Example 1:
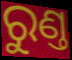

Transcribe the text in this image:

ରୁଣ୍ତ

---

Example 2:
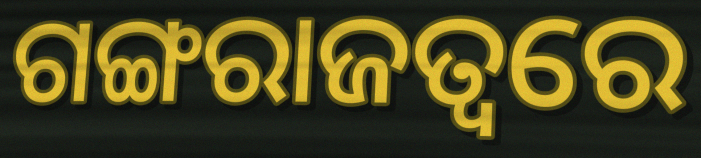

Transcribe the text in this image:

ଗଙ୍ଗରାଜତ୍ୱରେ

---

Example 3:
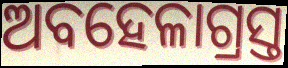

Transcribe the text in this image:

ଅବହେଳାଗ୍ରସ୍ତ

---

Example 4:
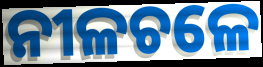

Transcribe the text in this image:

ନୀଳଚଳେ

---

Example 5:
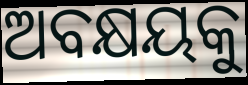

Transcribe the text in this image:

ଅବକ୍ଷୟକୁ